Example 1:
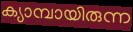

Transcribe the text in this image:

ക്യാമ്പായിരുന്ന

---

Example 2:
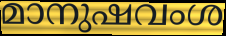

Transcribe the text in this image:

മാനുഷവംശ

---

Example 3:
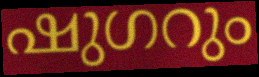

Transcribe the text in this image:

ഷുഗറും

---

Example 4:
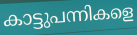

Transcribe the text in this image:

കാട്ടുപന്നികളെ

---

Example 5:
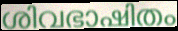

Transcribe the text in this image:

ശിവഭാഷിതം